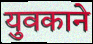
युवकाने